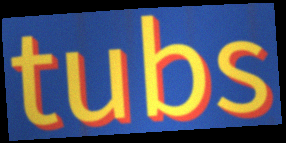
tubs